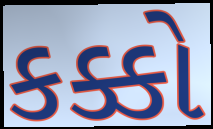
કક્કો